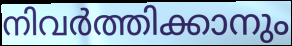
നിവർത്തിക്കാനും